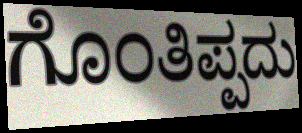
ಗೊಂತಿಪ್ಪದು